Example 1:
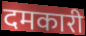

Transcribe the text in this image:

दमकारी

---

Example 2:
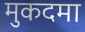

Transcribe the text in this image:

मुकदमा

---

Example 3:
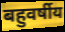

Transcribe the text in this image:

बहुवर्षीय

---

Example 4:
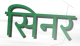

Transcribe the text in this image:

सिनर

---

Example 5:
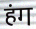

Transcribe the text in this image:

हंग